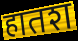
हातश